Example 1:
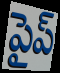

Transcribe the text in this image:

పైప్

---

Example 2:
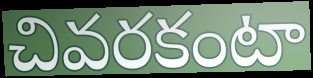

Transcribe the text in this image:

చివరకంటా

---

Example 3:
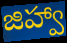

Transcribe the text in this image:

జిహ్వా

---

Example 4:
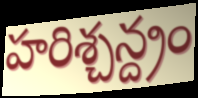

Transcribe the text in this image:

హరిశ్చన్ద్రం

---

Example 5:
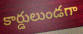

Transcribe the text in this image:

కార్డులుండగా